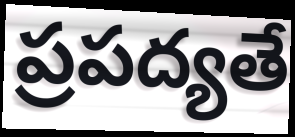
ప్రపద్యతే